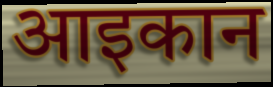
आइकान